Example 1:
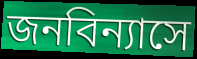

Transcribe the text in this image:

জনবিন্যাসে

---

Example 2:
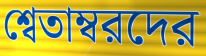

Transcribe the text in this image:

শ্বেতাম্বরদের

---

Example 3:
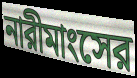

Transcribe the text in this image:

নারীমাংসের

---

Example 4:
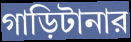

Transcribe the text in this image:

গাড়িটানার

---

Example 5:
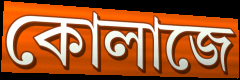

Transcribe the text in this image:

কোলাজে